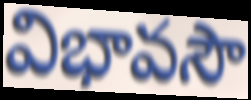
విభావసౌ